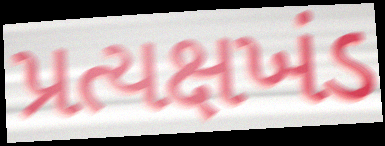
પ્રત્યક્ષખંડ